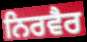
ਨਿਰਵੈਰ